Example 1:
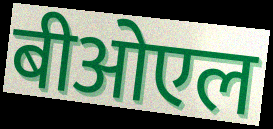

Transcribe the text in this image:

बीओएल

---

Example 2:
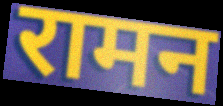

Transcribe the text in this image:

रामन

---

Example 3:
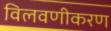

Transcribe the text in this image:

विलवणीकरण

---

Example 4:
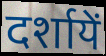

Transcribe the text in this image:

दर्शायें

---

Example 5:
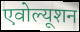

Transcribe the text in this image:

एवोल्यूशन